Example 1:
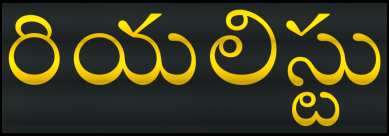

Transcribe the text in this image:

రియలిస్టు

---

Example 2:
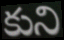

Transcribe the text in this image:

కుని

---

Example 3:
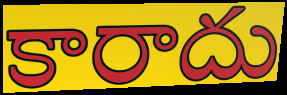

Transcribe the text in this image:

కారాదు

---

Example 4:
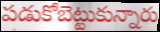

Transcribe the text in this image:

పడుకోబెట్టుకున్నారు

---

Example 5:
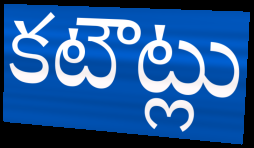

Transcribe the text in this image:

కటౌట్లు